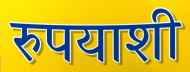
रुपयाशी